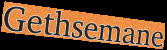
Gethsemane